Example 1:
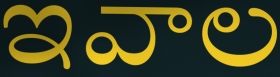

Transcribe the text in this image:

ఇవాల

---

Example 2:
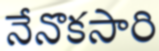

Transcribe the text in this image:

నేనొకసారి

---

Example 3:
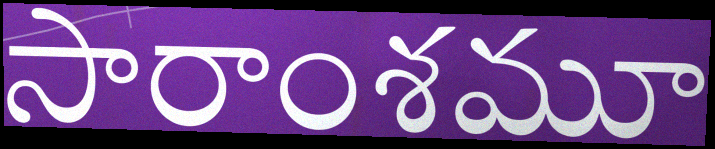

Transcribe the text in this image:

సారాంశమూ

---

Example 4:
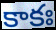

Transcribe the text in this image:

కాకః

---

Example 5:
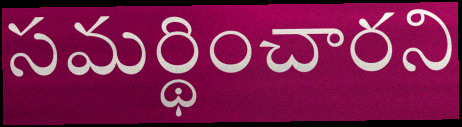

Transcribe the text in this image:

సమర్థించారని